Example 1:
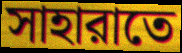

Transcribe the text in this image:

সাহারাতে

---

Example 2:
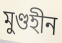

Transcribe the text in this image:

মুণ্ডহীন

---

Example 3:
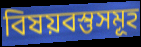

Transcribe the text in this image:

বিষয়বস্তুসমূহ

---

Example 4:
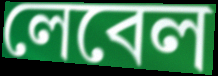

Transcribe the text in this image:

লেবেল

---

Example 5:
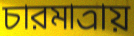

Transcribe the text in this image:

চারমাত্রায়